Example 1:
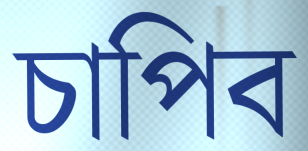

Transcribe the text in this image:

চাপিব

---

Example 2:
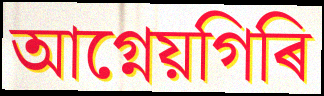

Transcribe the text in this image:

আগ্নেয়গিৰি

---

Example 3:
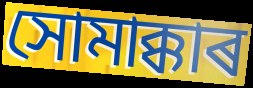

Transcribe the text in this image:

সোমাক্কাৰ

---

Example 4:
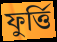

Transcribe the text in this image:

ফুৰ্ত্তি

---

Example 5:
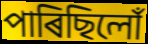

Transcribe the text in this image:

পাৰিছিলোঁ